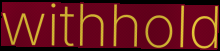
withhold